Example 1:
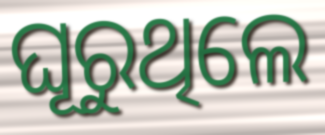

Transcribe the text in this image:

ଘୂରୁଥିଲେ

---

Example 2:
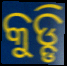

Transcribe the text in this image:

କୁଡ୍ଡି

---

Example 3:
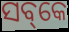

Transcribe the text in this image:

ସବ୍‌କେ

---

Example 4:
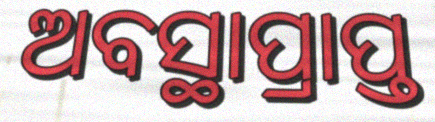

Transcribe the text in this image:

ଅବସ୍ଥାପ୍ରାପ୍ତ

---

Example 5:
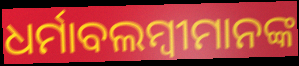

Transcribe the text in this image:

ଧର୍ମାବଲମ୍ବୀମାନଙ୍କ